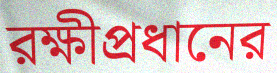
রক্ষীপ্রধানের